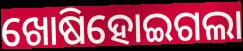
ଖୋଷିହୋଇଗଲା